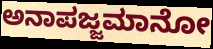
ಅನಾಪಜ್ಜಮಾನೋ